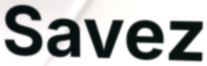
Savez